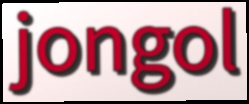
jongol